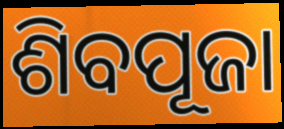
ଶିବପୂଜା